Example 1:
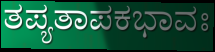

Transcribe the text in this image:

ತಪ್ಯತಾಪಕಭಾವಃ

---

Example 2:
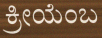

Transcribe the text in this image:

ಕ್ರೀಯೆಂಬ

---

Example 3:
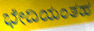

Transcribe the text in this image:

ಭೇದಿಯಂತಹ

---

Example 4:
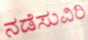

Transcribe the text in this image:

ನಡೆಸುವಿರಿ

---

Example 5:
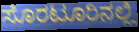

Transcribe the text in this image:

ಸೊರಟೂರಿನಲ್ಲಿ